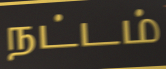
நட்டம்